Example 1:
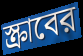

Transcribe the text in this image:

স্ক্রাবের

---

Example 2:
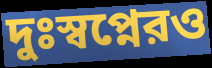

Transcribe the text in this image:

দুঃস্বপ্নেরও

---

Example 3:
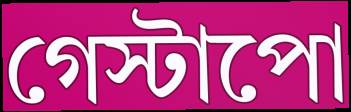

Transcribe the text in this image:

গেস্টাপো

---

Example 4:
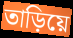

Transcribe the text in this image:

তাড়িয়ে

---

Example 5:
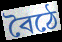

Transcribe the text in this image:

বৈঠে